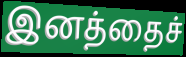
இனத்தைச்